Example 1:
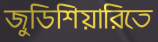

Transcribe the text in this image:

জুডিশিয়ারিতে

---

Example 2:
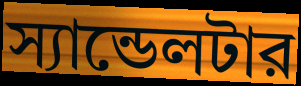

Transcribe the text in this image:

স্যান্ডেলটার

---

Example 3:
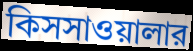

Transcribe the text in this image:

কিসসাওয়ালার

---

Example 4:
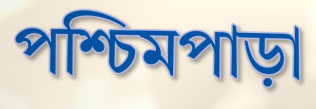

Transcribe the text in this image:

পশ্চিমপাড়া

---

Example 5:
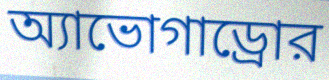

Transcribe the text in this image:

অ্যাভোগাড্রোর